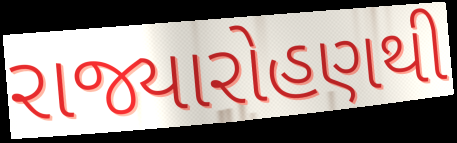
રાજ્યારોહણથી